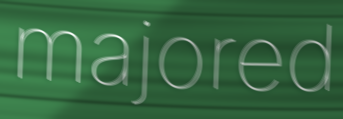
majored